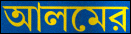
আলমের